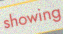
showing